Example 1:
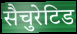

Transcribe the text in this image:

सैचुरेटिड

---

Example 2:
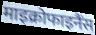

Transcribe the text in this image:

माइक्रोफाइनैंस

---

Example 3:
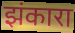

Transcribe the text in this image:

झंकारा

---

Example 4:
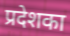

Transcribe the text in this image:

प्रदेशका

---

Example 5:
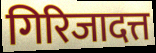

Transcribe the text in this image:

गिरिजादत्त